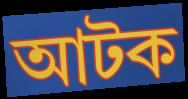
আটক